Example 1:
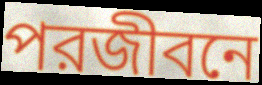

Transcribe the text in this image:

পরজীবনে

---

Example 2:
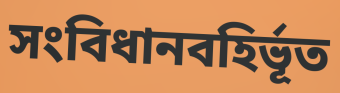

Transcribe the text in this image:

সংবিধানবহির্ভূত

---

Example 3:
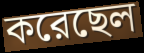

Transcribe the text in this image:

করেছেল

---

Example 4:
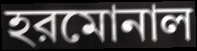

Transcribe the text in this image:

হরমোনাল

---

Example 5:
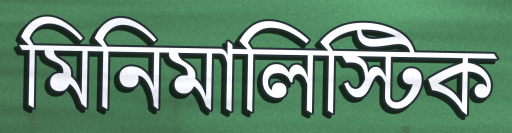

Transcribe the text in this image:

মিনিমালিস্টিক